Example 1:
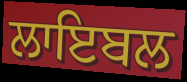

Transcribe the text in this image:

ਲਾਇਬਲ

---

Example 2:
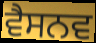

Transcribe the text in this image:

ਵੈਸਨਵ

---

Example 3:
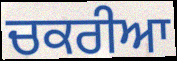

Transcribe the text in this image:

ਚਕਰੀਆ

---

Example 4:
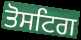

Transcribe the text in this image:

ਤੋਸਟਿਗ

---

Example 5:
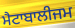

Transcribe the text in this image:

ਮੈਟਾਬਾਲੀਜਮ